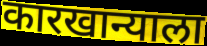
कारखान्याला